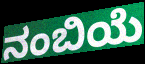
ನಂಬಿಯೆ